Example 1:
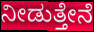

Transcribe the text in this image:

ನೀಡುತ್ತೇನೆ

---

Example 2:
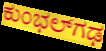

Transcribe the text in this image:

ಕುಂಭಲ್‌ಗಢ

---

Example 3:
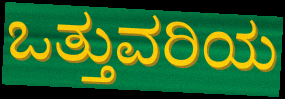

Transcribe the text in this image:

ಒತ್ತುವರಿಯ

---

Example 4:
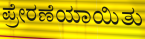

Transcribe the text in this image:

ಪ್ರೇರಣೆಯಾಯಿತು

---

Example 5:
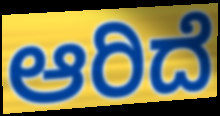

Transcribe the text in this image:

ಆರಿದೆ